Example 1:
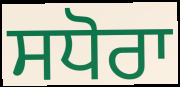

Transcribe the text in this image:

ਸਧੋਰਾ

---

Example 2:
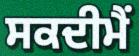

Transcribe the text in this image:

ਸਕਦੀਮੈਂ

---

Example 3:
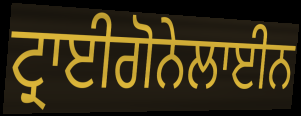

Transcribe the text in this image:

ਟ੍ਰਾਈਗੋਨੇਲਾਈਨ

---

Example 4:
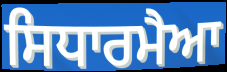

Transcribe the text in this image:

ਸਿਧਾਰਮੈਆ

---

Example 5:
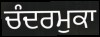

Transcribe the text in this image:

ਚੰਦਰਮੁਕਾ